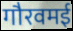
गौरवमई